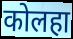
कोलहा